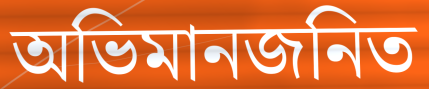
অভিমানজনিত